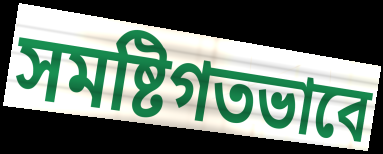
সমষ্টিগতভাবে